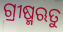
ଗ୍ରୀଷ୍ମଋତୁ